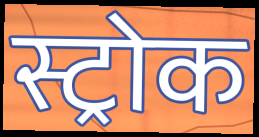
स्ट्रोक